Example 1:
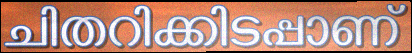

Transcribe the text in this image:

ചിതറിക്കിടപ്പാണ്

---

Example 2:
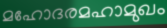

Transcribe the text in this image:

മഹോദരമഹാമുഖം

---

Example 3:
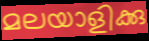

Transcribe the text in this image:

മലയാളിക്കു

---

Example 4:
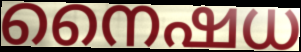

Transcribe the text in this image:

നൈഷധ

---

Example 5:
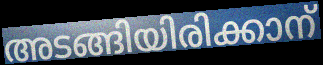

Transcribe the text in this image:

അടങ്ങിയിരിക്കാന്